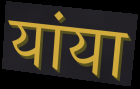
यांया